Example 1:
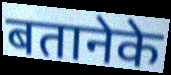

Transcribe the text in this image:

बतानेके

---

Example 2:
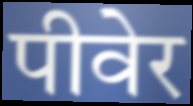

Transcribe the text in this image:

पीवेर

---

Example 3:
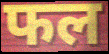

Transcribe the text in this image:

फल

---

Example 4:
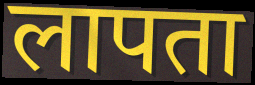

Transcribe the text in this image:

लापता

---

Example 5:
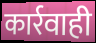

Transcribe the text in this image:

कार्रवाही